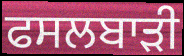
ਫਸਲਬਾੜੀ